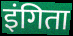
इंगिता